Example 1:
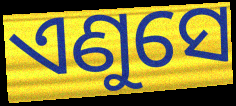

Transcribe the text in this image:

ଏଣୁସେ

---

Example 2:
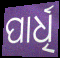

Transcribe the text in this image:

ପାର୍ଧି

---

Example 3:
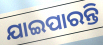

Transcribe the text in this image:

ଯାଇପାରନ୍ତି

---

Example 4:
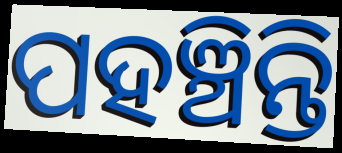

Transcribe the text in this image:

ପହଞ୍ଚିନ୍ତି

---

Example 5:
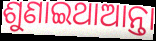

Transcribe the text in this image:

ଶୁଣାଇଥାଆନ୍ତା